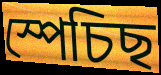
স্পেচিছ